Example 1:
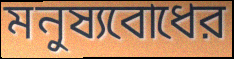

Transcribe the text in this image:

মনুষ্যবোধের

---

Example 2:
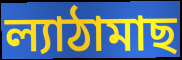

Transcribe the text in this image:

ল্যাঠামাছ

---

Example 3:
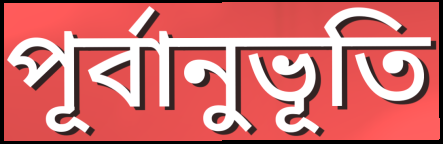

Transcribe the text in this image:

পূর্বানুভূতি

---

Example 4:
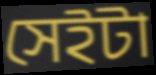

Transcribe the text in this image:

সেইটা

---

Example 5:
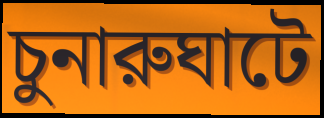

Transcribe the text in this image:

চুনারুঘাটে